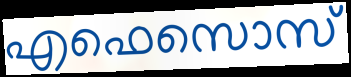
എഫെസൊസ്